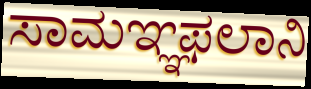
ಸಾಮಞ್ಞಫಲಾನಿ